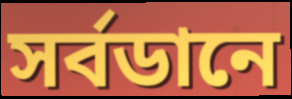
সর্বডানে